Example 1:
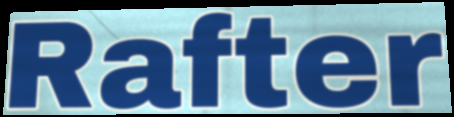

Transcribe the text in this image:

Rafter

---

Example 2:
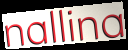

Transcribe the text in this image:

nallina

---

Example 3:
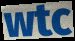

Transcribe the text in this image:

wtc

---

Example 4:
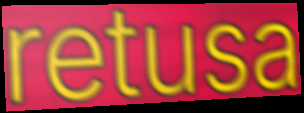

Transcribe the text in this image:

retusa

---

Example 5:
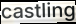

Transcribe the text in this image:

castling